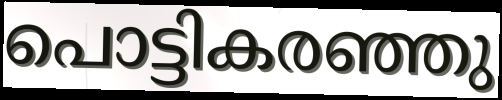
പൊട്ടികരഞ്ഞു